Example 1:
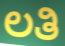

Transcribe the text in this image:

ಲತಿ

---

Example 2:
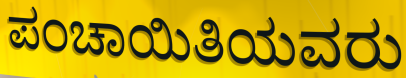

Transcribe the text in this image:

ಪಂಚಾಯಿತಿಯವರು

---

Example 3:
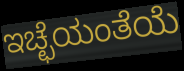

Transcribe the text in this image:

ಇಚ್ಛೆಯಂತೆಯೆ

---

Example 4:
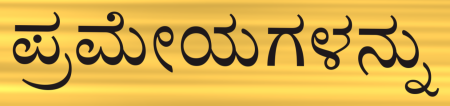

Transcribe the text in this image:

ಪ್ರಮೇಯಗಳನ್ನು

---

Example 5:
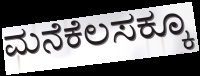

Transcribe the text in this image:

ಮನೆಕೆಲಸಕ್ಕೂ